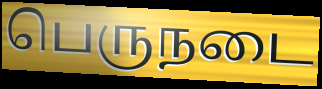
பெருநடை